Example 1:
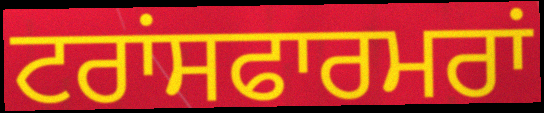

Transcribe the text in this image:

ਟਰਾਂਸਫਾਰਮਰਾਂ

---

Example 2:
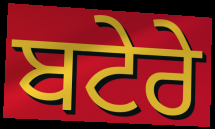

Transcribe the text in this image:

ਬਟੇਰੇ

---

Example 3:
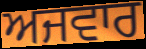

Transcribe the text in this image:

ਅਜਵਾਰ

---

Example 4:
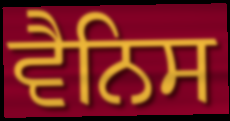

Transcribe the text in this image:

ਵੈਨਿਸ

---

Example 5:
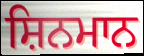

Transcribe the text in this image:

ਸ਼ਿਨਮਾਨ